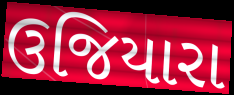
ઉજિયારા